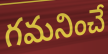
గమనించే